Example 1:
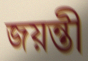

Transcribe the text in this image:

জয়ন্তী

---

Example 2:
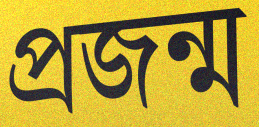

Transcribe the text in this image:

প্ৰজন্ম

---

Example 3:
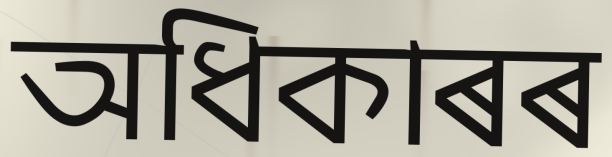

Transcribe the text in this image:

অধিকাৰৰ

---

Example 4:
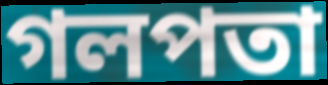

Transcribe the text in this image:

গলপতা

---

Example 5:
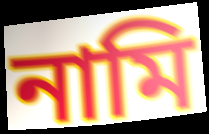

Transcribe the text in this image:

নামি